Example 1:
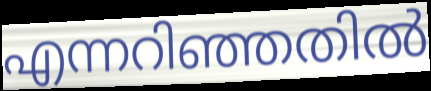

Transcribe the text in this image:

എന്നറിഞ്ഞതിൽ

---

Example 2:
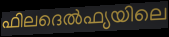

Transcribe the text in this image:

ഫിലദെൽഫ്യയിലെ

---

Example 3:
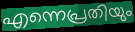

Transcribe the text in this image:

എന്നെപ്രതിയും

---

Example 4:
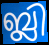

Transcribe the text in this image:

ബ്ലി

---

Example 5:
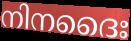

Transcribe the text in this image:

നിനദൈഃ